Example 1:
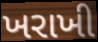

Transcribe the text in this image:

ખરાખી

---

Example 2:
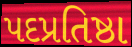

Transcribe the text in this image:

પદપ્રતિષ્ઠા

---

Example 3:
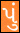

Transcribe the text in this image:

પું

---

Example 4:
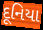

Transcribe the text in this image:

દૂનિયા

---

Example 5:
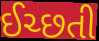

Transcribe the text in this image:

ઈચ્છતી